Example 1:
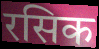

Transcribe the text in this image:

रसिक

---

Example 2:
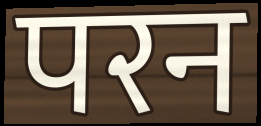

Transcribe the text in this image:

परन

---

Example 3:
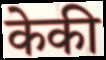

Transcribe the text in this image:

केकी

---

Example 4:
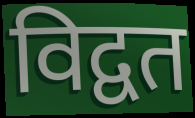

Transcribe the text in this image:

विद्वत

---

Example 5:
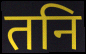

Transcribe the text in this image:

तनि